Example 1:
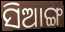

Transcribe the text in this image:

ସିଆଙ୍ଗ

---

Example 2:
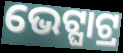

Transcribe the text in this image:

ଭେଟ୍ଘାଟ୍ର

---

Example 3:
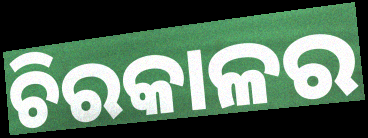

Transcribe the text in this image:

ଚିରକାଳର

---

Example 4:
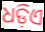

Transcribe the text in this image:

ଧଡ଼ିଏ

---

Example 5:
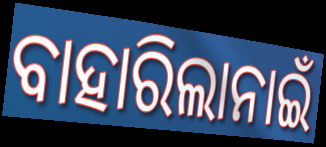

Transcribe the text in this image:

ବାହାରିଲାନାଇଁ